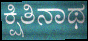
ಕ್ಷಿತಿನಾಥ